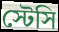
স্টেসি